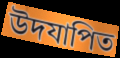
উদযাপিত